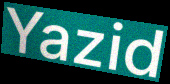
Yazid